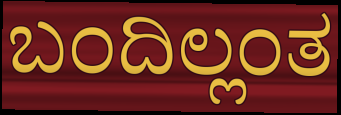
ಬಂದಿಲ್ಲಂತ